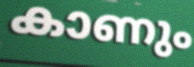
കാണും